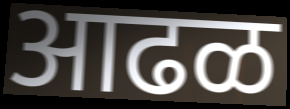
आढळ